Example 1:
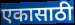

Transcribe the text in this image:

एकासाठी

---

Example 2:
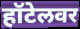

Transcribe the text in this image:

हॉटेलवर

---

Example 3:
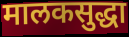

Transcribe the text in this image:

मालकसुद्धा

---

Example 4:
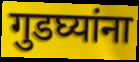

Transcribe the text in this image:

गुडघ्यांना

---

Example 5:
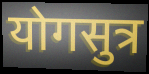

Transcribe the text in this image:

योगसुत्र